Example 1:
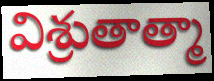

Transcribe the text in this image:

విశ్రుతాత్మా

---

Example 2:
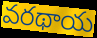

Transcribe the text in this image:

వరథాయ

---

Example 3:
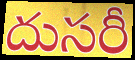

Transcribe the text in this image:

దుసరీ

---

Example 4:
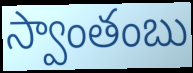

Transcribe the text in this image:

స్వాంతంబు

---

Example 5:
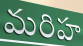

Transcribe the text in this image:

మరిహ